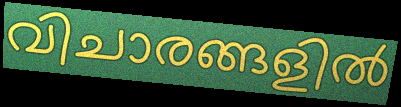
വിചാരങ്ങളിൽ